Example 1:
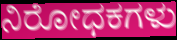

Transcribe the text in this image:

ನಿರೋಧಕಗಳು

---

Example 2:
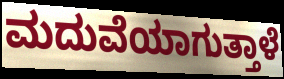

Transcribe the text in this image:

ಮದುವೆಯಾಗುತ್ತಾಳೆ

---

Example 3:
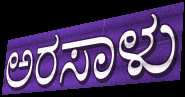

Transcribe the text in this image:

ಅರಸಾಳು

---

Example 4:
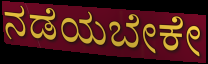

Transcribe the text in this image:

ನಡೆಯಬೇಕೇ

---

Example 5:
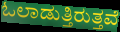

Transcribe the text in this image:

ಓಲಾಡುತ್ತಿರುತ್ತವೆ